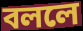
বললে